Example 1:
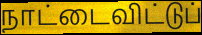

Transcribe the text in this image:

நாட்டைவிட்டுப்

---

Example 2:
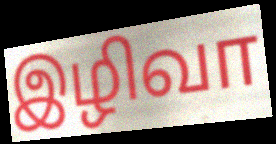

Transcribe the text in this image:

இழிவா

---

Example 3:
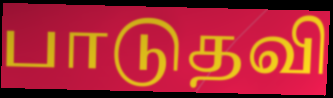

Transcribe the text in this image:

பாடுதவி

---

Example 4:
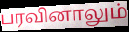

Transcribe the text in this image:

பரவினாலும்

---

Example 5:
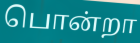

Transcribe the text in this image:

பொன்றா